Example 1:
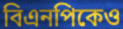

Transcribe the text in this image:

বিএনপিকেও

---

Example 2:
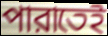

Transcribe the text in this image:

পারাতেই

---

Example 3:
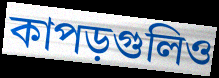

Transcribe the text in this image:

কাপড়গুলিও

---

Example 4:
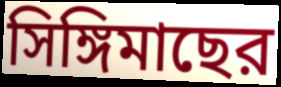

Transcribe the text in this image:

সিঙ্গিমাছের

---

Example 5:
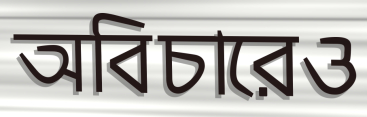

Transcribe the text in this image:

অবিচারেও